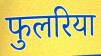
फुलरिया